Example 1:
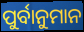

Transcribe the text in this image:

ପୁର୍ବାନୁମାନ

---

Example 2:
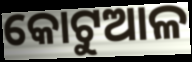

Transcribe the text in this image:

କୋଟୁଆଳ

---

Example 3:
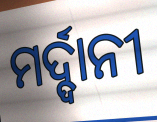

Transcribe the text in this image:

ମର୍ଦ୍ଦାନୀ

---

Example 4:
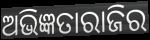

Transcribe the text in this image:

ଅଭିଜ୍ଞତାରାଜିର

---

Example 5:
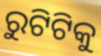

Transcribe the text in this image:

ରୁଟିଟିକୁ